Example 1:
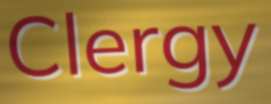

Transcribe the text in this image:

Clergy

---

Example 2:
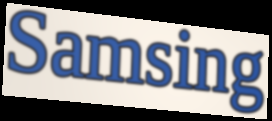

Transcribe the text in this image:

Samsing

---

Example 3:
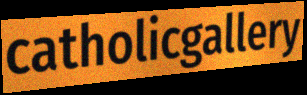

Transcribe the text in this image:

catholicgallery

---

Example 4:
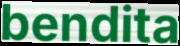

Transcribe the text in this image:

bendita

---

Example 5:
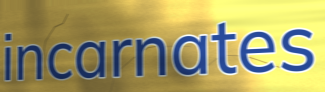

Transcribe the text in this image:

incarnates